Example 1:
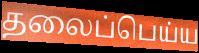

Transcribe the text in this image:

தலைப்பெய்ய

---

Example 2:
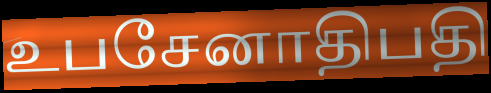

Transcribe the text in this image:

உபசேனாதிபதி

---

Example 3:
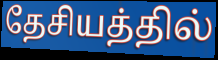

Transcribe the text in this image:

தேசியத்தில்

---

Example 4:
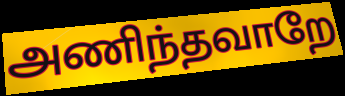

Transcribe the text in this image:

அணிந்தவாறே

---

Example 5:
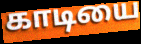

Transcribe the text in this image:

காடியை